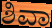
ಶಿವಾ